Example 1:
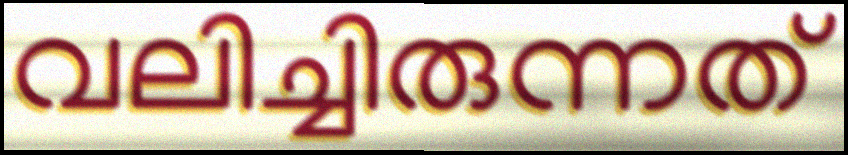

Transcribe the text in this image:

വലിച്ചിരുന്നത്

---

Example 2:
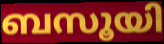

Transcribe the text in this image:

ബസൂയി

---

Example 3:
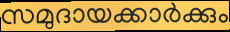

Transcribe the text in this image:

സമുദായക്കാർക്കും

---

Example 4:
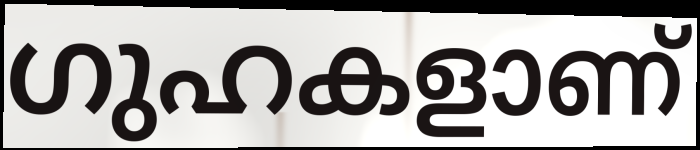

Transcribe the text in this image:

ഗുഹകളാണ്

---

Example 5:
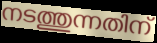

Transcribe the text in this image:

നടത്തുന്നതിന്